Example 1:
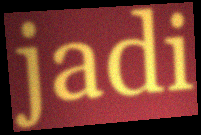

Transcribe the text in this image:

jadi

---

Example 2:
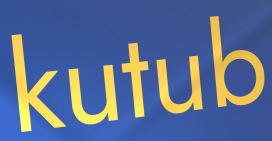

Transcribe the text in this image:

kutub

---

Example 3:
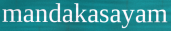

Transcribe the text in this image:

mandakasayam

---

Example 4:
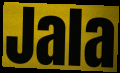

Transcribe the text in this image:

Jala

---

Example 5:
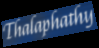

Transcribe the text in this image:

Thalaphathy